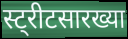
स्ट्रीटसारख्या